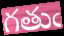
గతుఁ